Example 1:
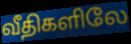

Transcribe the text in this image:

வீதிகளிலே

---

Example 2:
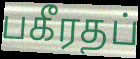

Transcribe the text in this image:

பகீரதப்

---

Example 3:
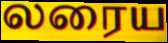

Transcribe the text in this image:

லரைய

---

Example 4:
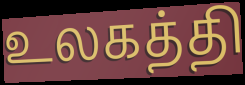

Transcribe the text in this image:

உலகத்தி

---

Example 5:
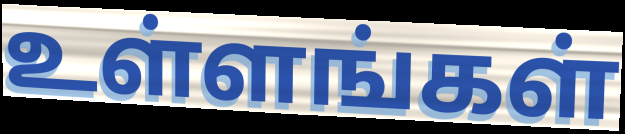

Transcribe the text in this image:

உள்ளங்கள்